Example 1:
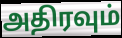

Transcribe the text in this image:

அதிரவும்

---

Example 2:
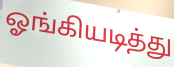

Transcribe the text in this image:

ஓங்கியடித்து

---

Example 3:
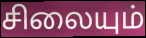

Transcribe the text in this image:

சிலையும்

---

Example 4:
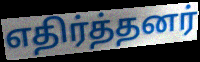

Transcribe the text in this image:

எதிர்த்தனர்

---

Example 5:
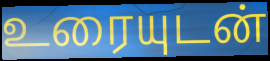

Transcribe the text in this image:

உரையுடன்